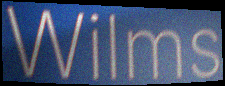
Wilms